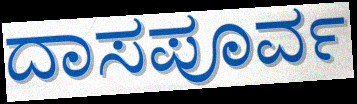
ದಾಸಪೂರ್ವ